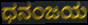
ಧನಂಜಯ